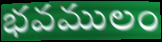
భవములం